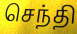
செந்தி